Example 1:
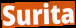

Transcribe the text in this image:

Surita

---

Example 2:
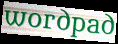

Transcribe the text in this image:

wordpad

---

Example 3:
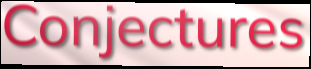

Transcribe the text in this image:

Conjectures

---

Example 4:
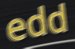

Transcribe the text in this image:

edd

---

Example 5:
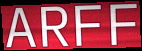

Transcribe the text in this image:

ARFF